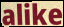
alike